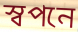
স্বপনে